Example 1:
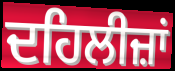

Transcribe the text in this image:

ਦਹਿਲੀਜ਼ਾਂ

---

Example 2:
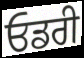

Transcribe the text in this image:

ਓਡਰੀ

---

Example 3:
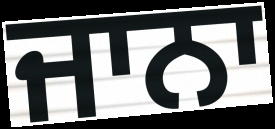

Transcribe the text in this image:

ਜਾਨਾ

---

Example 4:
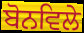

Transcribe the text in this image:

ਬੋਨਵਿਲੇ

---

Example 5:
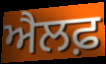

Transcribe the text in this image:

ਐਲਫ਼